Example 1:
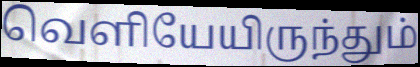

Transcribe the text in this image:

வெளியேயிருந்தும்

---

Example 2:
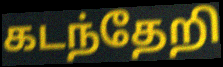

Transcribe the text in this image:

கடந்தேறி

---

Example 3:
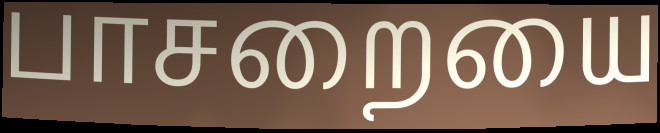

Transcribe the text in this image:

பாசறையை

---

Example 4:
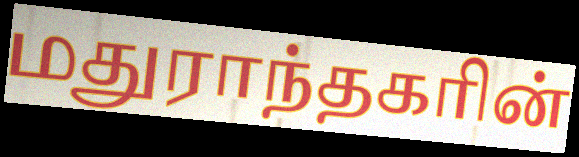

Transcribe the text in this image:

மதுராந்தகரின்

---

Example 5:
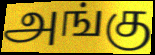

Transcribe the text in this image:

அங்கு